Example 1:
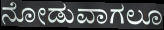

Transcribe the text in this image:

ನೋಡುವಾಗಲೂ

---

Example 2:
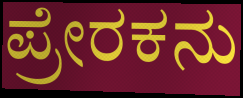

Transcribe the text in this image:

ಪ್ರೇರಕನು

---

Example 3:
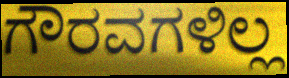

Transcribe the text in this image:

ಗೌರವಗಳಿಲ್ಲ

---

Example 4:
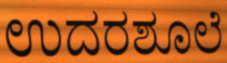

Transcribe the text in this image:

ಉದರಶೂಲೆ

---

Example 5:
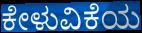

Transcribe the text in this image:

ಕೇಳುವಿಕೆಯ